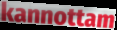
kannottam